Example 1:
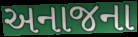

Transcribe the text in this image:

અનાજના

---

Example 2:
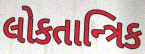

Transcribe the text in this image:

લોકતાન્ત્રિક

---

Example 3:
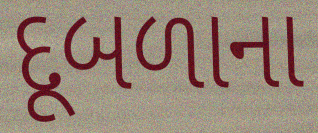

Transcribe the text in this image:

દૂબળાના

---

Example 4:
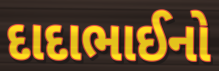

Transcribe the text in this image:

દાદાભાઈનો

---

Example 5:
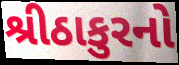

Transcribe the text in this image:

શ્રીઠાકુરનો